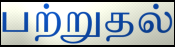
பற்றுதல்